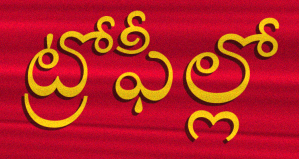
ట్రోఫీల్లో